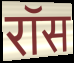
रॉस